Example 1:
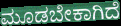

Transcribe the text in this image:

ಮೂಡಬೇಕಾಗಿದೆ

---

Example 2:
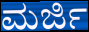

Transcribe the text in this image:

ಮರ್ಜಿ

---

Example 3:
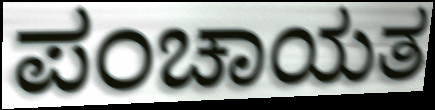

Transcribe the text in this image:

ಪಂಚಾಯತ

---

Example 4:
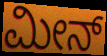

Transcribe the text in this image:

ಮೀನ್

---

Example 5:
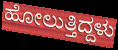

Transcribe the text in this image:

ಹೋಲುತ್ತಿದ್ದಳು